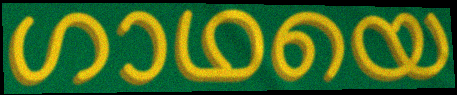
ഗാഥയെ